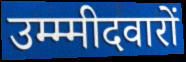
उम्म्मीदवारों